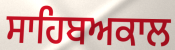
ਸਾਹਿਬਅਕਾਲ